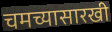
चमच्यासारखी